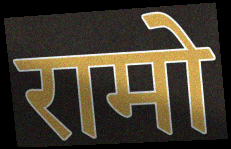
रामो